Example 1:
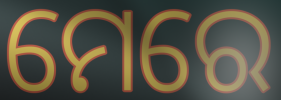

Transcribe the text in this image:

ମେରେ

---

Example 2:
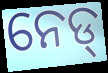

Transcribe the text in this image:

ନେଡ୍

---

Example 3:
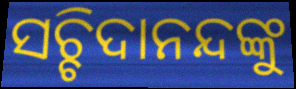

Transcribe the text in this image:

ସଚ୍ଚିଦାନନ୍ଦଙ୍କୁ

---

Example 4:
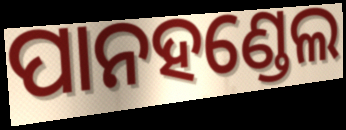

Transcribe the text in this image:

ପାନହଣ୍ଡେଲ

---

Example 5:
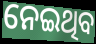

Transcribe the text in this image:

ନେଇଥିବ